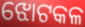
ଝୋଟକଳ